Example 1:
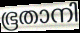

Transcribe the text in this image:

ഭൂതാനി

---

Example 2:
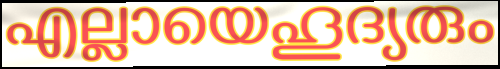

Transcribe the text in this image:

എല്ലായെഹൂദ്യരും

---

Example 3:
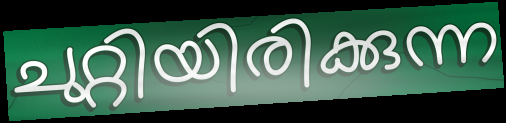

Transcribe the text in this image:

ചുറ്റിയിരിക്കുന്ന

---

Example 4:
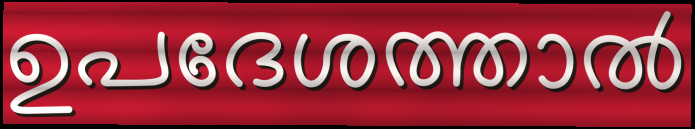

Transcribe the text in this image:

ഉപദേശത്താൽ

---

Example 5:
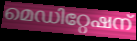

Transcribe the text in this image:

മെഡിറ്റേഷന്